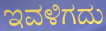
ಇವಳಿಗದು